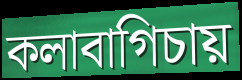
কলাবাগিচায়